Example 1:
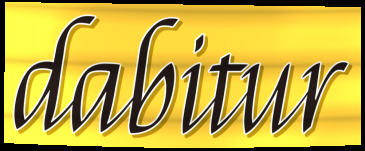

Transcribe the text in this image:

dabitur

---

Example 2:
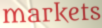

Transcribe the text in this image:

markets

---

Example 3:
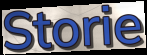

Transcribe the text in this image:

Storie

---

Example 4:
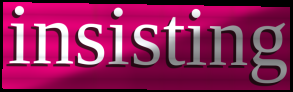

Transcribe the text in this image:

insisting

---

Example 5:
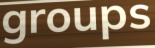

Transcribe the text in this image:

groups